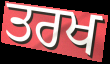
ਤਰਖ